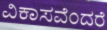
ವಿಕಾಸವೆಂದರೆ